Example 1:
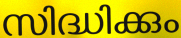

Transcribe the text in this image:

സിദ്ധിക്കും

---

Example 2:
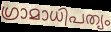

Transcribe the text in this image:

ഗ്രാമാധിപത്യം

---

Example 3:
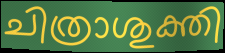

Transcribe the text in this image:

ചിത്രാശുക്തി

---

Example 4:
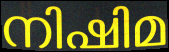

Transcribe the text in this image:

നിഷിമ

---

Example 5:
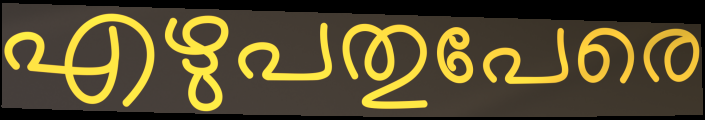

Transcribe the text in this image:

എഴുപതുപേരെ